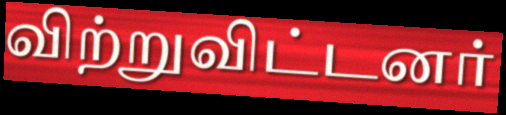
விற்றுவிட்டனர்